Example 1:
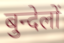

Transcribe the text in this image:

बुन्देलों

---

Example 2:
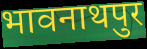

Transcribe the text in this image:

भावनाथपुर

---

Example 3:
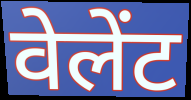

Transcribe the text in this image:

वेलेंट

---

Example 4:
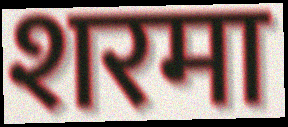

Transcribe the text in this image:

शरमा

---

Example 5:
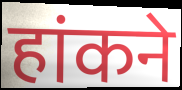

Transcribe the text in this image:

हांकने